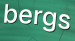
bergs